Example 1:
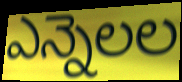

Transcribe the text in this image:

ఎన్నెలల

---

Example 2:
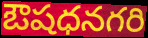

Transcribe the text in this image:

ఔషధనగరి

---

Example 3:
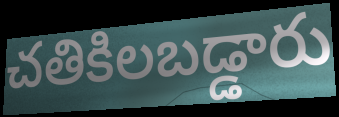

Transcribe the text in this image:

చతికిలబడ్డారు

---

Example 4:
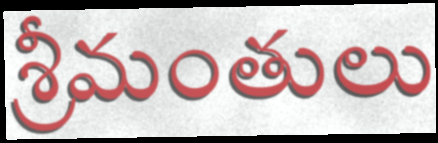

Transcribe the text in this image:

శ్రీమంతులు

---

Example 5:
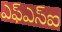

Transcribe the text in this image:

ఎఫ్ఎస్ఐ